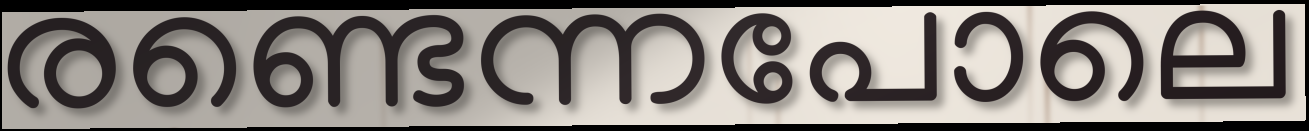
രണ്ടെന്നപോലെ